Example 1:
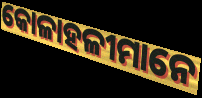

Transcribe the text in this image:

କୋଳାହଳୀମାନେ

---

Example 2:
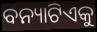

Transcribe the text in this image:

ବନ୍ୟାଟିଏକୁ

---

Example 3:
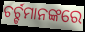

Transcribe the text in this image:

ଚର୍ଚ୍ଚମାନଙ୍କରେ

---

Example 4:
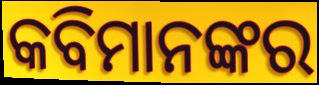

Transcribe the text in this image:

କବିମାନଙ୍କର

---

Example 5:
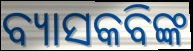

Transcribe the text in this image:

ବ୍ୟାସକବିଙ୍କ